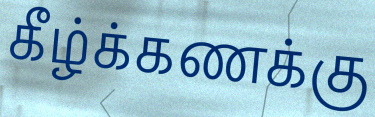
கீழ்க்கணக்கு